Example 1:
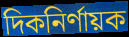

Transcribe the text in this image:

দিকনির্ণায়ক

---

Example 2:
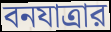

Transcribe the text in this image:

বনযাত্রার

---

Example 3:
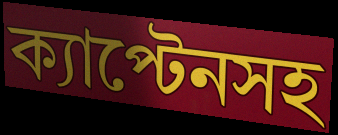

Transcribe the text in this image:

ক্যাপ্টেনসহ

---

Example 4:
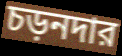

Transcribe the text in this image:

চড়নদার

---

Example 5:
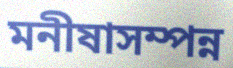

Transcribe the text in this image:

মনীষাসম্পন্ন